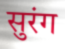
सुरंग